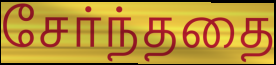
சேர்ந்ததை